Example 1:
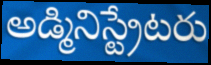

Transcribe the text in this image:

అడ్మినిస్ట్రేటరు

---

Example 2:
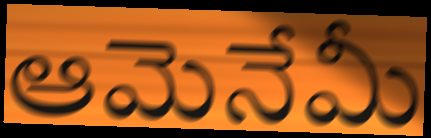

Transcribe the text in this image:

ఆమెనేమీ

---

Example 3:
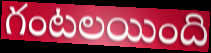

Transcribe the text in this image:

గంటలయింది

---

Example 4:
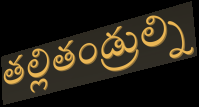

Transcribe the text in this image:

తల్లితండ్రుల్ని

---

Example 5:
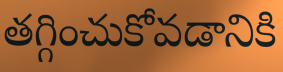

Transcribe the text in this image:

తగ్గించుకోవడానికి